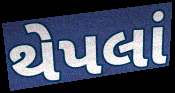
થેપલાં